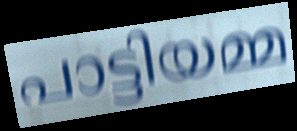
പാട്ടിയമ്മ